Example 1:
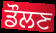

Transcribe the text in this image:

ਡੌਲਣ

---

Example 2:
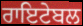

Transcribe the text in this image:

ਰਾਇਟੇਬਲ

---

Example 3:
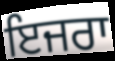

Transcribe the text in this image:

ਇਜਰਾ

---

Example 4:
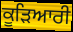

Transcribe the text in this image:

ਕੂੜਿਆਰੀ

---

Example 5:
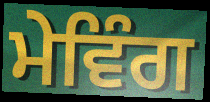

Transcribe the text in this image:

ਮੇਵਿੰਗ